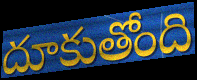
దూకుతోంది